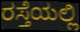
ರಸ್ತೆಯಲ್ಲಿ